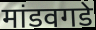
मांडवगडे